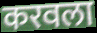
करवला